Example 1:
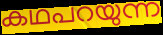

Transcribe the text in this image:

കഥപറയുന്ന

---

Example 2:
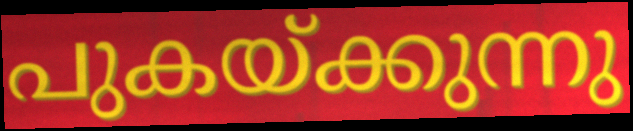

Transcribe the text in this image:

പുകയ്ക്കുന്നു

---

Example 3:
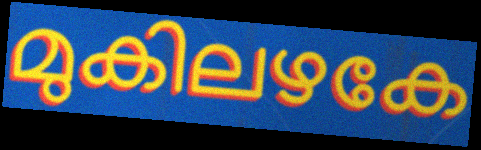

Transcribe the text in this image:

മുകിലഴകേ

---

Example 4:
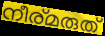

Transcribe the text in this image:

നീര്മരുത്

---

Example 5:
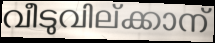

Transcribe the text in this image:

വീടുവില്ക്കാന്